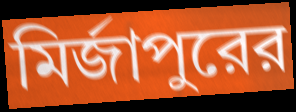
মির্জাপুরের